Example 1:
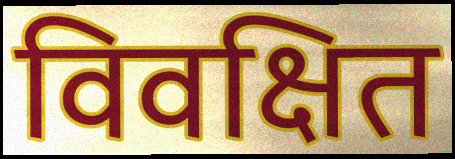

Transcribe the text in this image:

विवक्षित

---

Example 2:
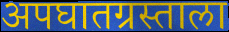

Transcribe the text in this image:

अपघातग्रस्ताला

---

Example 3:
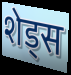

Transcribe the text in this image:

शेड्स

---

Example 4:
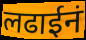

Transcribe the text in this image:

लढाईनं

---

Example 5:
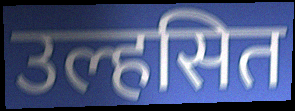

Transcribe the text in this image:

उल्हसित